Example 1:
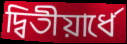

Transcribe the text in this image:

দ্বিতীয়ার্ধে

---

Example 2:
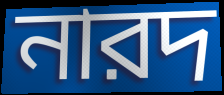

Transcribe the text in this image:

নারদ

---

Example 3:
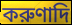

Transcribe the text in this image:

করুণাদি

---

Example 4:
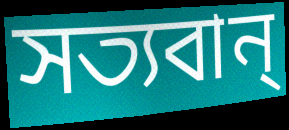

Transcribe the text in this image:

সত্যবান্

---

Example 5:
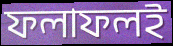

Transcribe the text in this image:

ফলাফলই